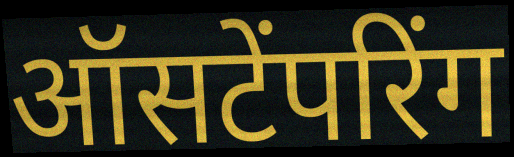
ऑसटेंपरिंग